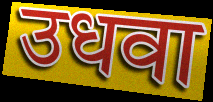
उधवा